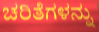
ಚರಿತೆಗಳನ್ನು